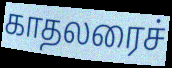
காதலரைச்